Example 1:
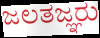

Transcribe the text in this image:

ಜಲತಜ್ಞರು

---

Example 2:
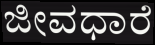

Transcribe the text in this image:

ಜೀವಧಾರೆ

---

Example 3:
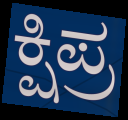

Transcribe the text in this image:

ಕ್ಷಿಪ್ರ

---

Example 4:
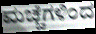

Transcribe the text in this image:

ಮಚ್ಚೆಗಳಿಂದ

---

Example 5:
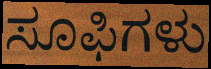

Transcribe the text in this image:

ಸೂಫಿಗಳು